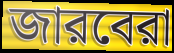
জারবেরা